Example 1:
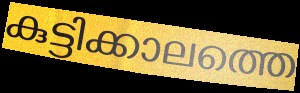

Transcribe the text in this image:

കുട്ടിക്കാലത്തെ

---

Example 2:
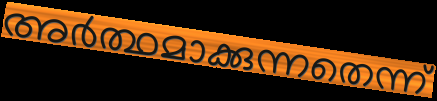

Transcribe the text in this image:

അർത്ഥമാക്കുന്നതെന്ന്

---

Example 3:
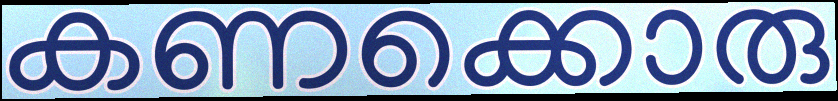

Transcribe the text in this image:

കണക്കൊരു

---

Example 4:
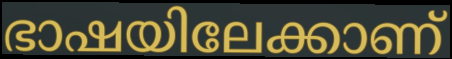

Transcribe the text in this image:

ഭാഷയിലേക്കാണ്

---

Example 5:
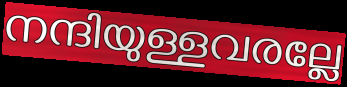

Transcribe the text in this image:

നന്ദിയുള്ളവരല്ലേ